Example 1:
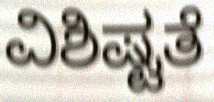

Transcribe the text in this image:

ವಿಶಿಷ್ಟತೆ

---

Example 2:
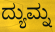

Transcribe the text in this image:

ದ್ಯುಮ್ನ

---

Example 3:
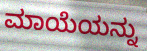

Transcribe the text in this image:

ಮಾಯೆಯನ್ನು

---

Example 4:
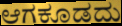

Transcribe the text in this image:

ಆಗಕೂಡದು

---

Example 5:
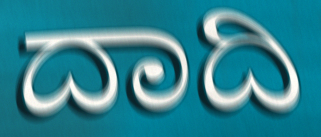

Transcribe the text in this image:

ದಾದಿ